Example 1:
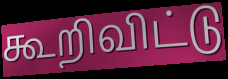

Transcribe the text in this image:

கூறிவிட்டு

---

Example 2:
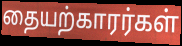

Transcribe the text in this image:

தையற்காரர்கள்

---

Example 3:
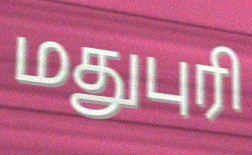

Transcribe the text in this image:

மதுபுரி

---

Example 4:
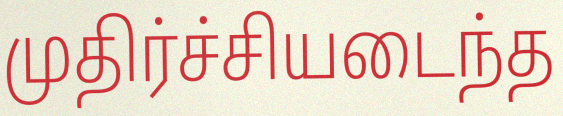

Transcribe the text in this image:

முதிர்ச்சியடைந்த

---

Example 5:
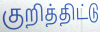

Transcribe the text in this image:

குறித்திட்டு